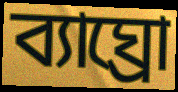
ব্যাঘ্রো